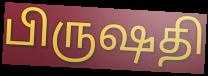
பிருஷதி